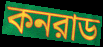
কনরাড